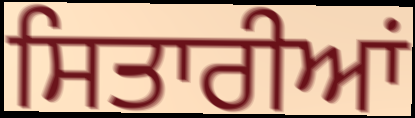
ਸਿਤਾਰੀਆਂ